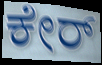
ಕೇರ್